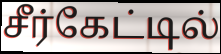
சீர்கேட்டில்